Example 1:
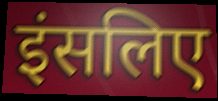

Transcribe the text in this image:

इंसलिए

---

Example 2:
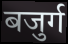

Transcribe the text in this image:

बजुर्ग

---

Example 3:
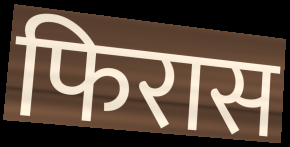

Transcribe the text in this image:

फिरास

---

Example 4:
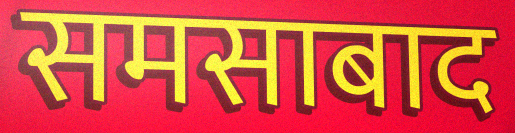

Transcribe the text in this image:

समसाबाद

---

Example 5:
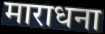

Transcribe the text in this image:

माराधना